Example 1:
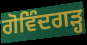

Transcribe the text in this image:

ਗੋਵਿੰਦਗੜ੍ਹ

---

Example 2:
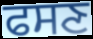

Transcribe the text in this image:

ਫਸਣ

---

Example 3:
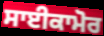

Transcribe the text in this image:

ਸਾਈਕਾਮੋਰ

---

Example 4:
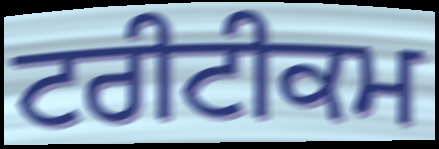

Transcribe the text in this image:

ਟਰੀਟੀਕਮ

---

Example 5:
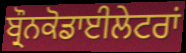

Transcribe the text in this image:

ਬ੍ਰੌਨਕੋਡਾਈਲੇਟਰਾਂ